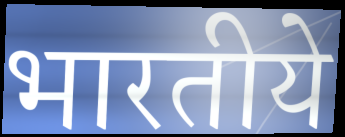
भारतीये